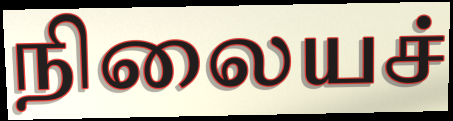
நிலையச்